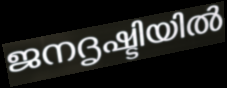
ജനദൃഷ്ടിയിൽ